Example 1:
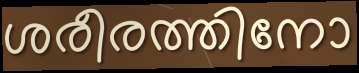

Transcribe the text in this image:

ശരീരത്തിനോ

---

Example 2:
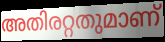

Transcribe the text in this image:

അതിരറ്റതുമാണ്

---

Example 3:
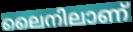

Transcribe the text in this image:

ലൈനിലാണ്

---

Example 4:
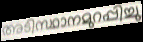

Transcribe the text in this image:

അടിസ്ഥാനമുറപ്പിച്ചു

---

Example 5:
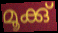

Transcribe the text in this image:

മൂക്കു്